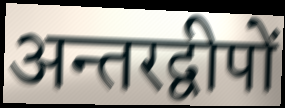
अन्तरद्वीपों